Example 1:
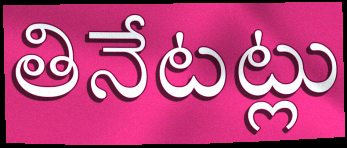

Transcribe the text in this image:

తినేటట్లు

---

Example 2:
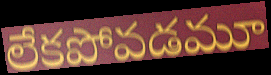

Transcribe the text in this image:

లేకపోవడమూ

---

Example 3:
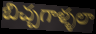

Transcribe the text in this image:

బిచ్చగాళ్ళలా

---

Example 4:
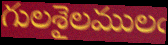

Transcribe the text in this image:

గులశైలములఁ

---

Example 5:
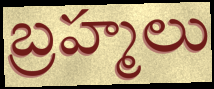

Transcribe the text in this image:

బ్రహ్మలు